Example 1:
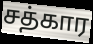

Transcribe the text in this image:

சத்கார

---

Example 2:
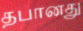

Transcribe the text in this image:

தபானது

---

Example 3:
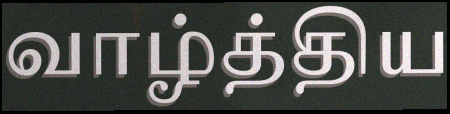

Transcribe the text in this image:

வாழ்த்திய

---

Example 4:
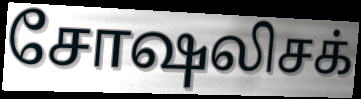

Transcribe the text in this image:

சோஷலிசக்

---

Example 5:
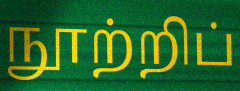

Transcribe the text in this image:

நூற்றிப்